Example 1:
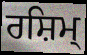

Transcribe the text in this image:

ਰਸ਼ਿਮ੍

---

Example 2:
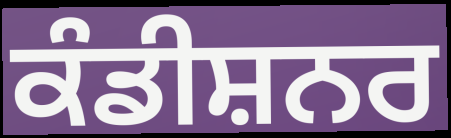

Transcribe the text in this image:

ਕੰਡੀਸ਼ਨਰ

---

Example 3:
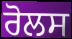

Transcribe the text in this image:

ਰੋਲਸ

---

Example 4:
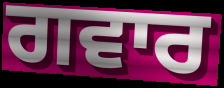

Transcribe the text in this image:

ਗਵਾਰ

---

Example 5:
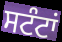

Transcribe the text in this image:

ਸਟੰਟਾਂ